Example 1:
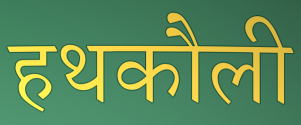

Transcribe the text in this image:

हथकौली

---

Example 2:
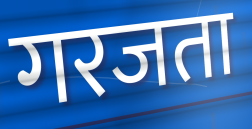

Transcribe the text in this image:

गरजता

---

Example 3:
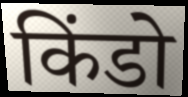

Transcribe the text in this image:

किंडो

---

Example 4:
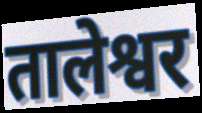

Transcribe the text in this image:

तालेश्वर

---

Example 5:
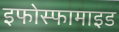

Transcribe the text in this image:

इफोस्फामाइड